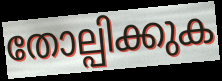
തോല്പിക്കുക